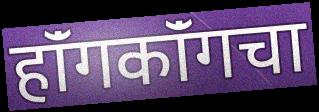
हॉंगकॉंगचा